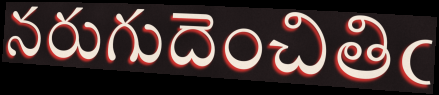
నరుగుదెంచితిఁ